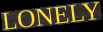
LONELY